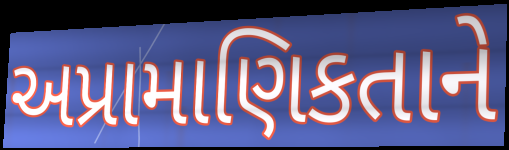
અપ્રામાણિકતાને